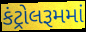
કંટ્રોલરૂમમાં